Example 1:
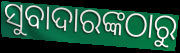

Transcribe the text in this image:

ସୁବାଦାରଙ୍କଠାରୁ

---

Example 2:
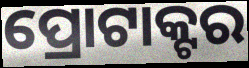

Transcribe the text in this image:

ପ୍ରୋଟାକ୍ଟର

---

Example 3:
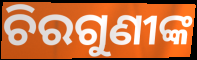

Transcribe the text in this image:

ଚିରଗୁଣୀଙ୍କ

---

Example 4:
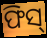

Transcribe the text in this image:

ଫିସ୍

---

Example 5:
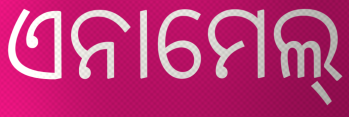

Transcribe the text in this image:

ଏନାମେଲ୍